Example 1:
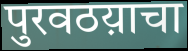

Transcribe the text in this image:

पुरवठय़ाचा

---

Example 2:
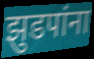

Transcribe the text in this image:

झुडपांना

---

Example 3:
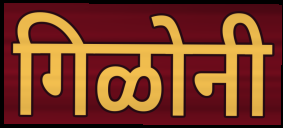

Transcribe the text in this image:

गिळोनी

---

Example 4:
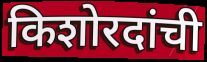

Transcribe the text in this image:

किशोरदांची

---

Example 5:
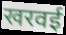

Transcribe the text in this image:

खरवई